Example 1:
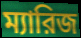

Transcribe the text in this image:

ম্যারিজ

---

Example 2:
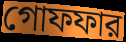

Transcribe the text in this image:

গোফফার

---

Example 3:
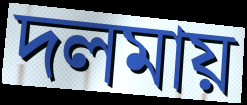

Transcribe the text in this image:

দলমায়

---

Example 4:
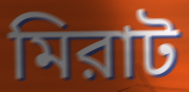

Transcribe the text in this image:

মিরাট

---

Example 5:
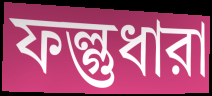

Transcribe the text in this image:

ফল্গুধারা